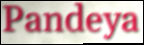
Pandeya